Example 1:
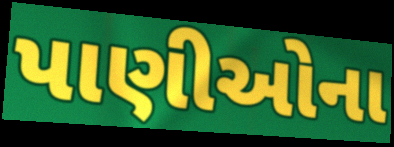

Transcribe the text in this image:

પાણીઓના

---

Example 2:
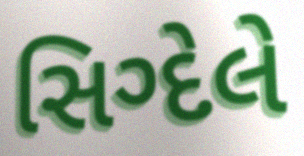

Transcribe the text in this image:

સિગ્દેલે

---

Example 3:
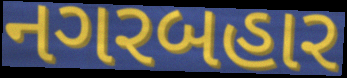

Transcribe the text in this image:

નગરબહાર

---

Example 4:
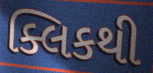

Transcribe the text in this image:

ક્લિકથી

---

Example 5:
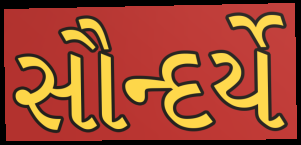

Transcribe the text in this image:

સૌન્દર્યે